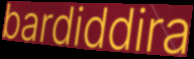
bardiddira